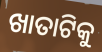
ଖାତାଟିକୁ